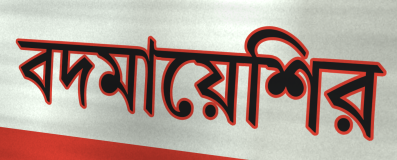
বদমায়েশির